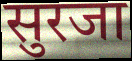
सुरजा